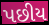
પછીય